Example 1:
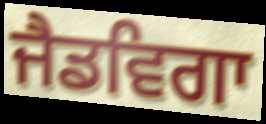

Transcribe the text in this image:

ਜੈਡਵਿਗਾ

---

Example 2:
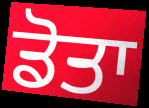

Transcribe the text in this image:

ਡੋਤਾ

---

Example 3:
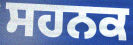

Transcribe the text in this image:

ਸਹਨਕ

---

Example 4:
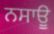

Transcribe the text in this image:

ਨਸਾਊ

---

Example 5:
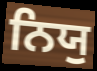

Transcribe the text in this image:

ਨਿਯੁ